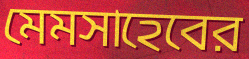
মেমসাহেবের